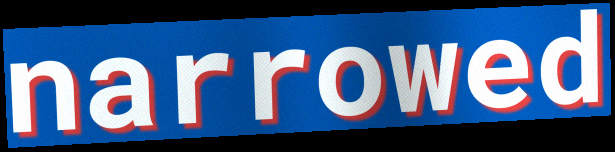
narrowed